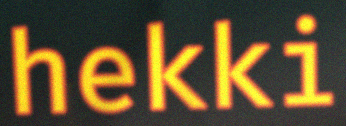
hekki